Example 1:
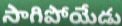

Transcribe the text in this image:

సాగిపోయేడు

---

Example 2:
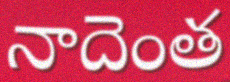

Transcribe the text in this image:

నాదెంత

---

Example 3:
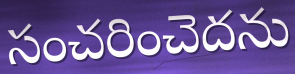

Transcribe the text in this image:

సంచరించెదను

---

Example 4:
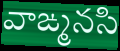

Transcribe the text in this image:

వాఙ్మనసి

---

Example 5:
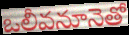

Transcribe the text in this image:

ఒలీవనూనెతో